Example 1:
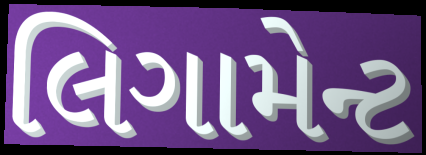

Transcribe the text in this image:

લિગામેન્ટ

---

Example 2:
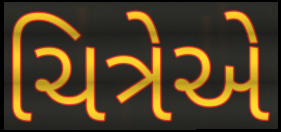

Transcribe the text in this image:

ચિત્રેએ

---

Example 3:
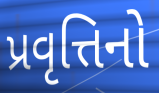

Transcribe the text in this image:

પ્રવૃત્તિનો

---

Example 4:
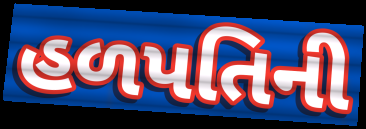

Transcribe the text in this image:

હળપતિની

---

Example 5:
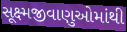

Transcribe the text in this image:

સૂક્ષ્મજીવાણુઓમાંથી